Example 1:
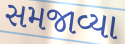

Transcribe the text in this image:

સમજાવ્યા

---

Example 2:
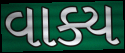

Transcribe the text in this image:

વાક્ય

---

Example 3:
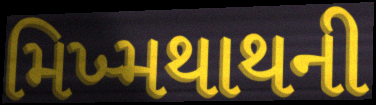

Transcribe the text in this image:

મિખ્મથાથની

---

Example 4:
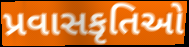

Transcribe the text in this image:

પ્રવાસકૃતિઓ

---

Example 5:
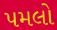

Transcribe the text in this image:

પમલો